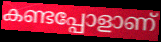
കണ്ടപ്പോളാണ്